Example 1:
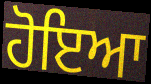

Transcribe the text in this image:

ਹੋਇਆ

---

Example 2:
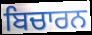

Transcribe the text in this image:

ਬਿਚਾਰਨ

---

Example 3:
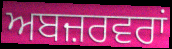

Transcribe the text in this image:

ਅਬਜ਼ਰਵਰਾਂ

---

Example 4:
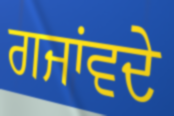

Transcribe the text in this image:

ਗਜਾਂਵਦੇ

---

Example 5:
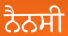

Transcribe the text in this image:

ਨੈਨਸੀ